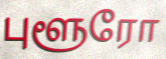
புளூரோ